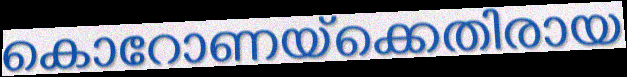
കൊറോണയ്‌ക്കെതിരായ